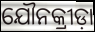
ଯୌନକ୍ରୀଡ଼ା